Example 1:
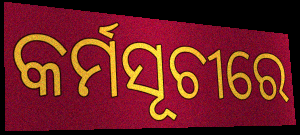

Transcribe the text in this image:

କର୍ମସୂଚୀରେ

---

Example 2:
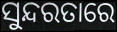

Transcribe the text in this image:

ସୁନ୍ଦରତାରେ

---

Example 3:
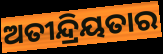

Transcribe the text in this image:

ଅତୀନ୍ଦ୍ରିୟତାର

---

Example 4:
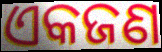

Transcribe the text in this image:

ଏକଜଣ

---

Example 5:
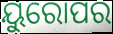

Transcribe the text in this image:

ୟୁରୋପର